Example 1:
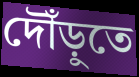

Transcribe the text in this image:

দৌঁড়ুতে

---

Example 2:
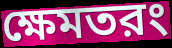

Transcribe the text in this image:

ক্ষেমতরং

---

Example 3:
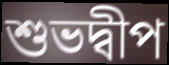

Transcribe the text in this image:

শুভদ্বীপ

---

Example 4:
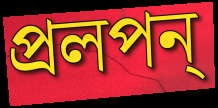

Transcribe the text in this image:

প্রলপন্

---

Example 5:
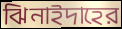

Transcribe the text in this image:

ঝিনাইদাহের